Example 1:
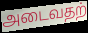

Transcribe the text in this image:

அடைவதற்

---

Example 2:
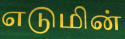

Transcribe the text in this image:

எடுமின்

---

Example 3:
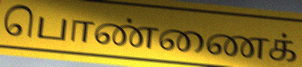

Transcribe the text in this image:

பொண்ணைக்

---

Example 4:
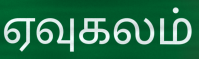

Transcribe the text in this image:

ஏவுகலம்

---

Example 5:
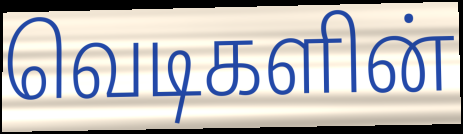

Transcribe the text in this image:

வெடிகளின்